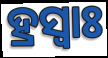
ହ୍ରସ୍ଵାଃ